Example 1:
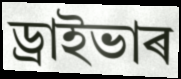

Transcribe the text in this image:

ড্ৰাইভাৰ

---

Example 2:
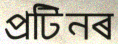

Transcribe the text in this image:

প্ৰটিনৰ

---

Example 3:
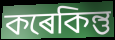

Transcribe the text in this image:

কৰেকিন্তু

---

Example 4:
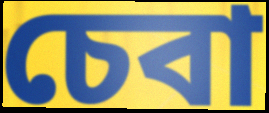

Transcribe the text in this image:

চেবা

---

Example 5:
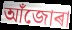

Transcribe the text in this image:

আঁজোৰা